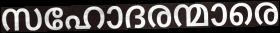
സഹോദരന്മാരെ